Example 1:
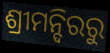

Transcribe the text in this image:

ଶ୍ରୀମନ୍ଦିରରୁ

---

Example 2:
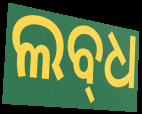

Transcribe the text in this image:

ଲବ୍‍ଧ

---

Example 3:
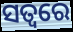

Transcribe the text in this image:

ସତ୍ଵରେ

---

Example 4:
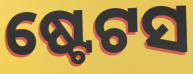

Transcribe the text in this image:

ଷ୍ଟେଟସ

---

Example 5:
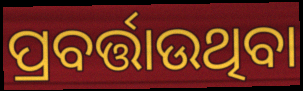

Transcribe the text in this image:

ପ୍ରବର୍ତ୍ତାଉଥିବା